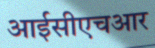
आईसीएचआर